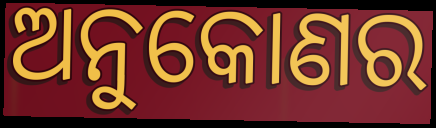
ଅନୁକୋଣର